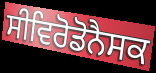
ਸੀਵਿਰੋਡੋਨੈਸਕ